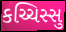
કચ્ચિસ્સુ